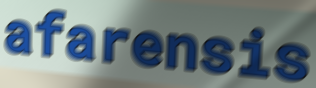
afarensis